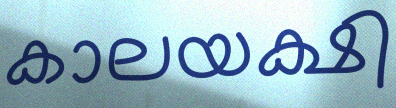
കാലയക്ഷി